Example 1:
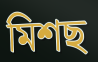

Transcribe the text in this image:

মিশছ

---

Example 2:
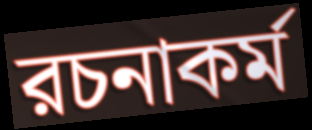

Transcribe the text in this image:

রচনাকর্ম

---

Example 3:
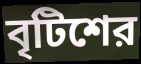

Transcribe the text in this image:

বৃটিশের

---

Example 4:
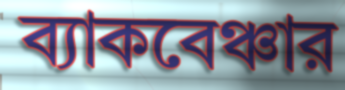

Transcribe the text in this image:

ব্যাকবেঞ্চার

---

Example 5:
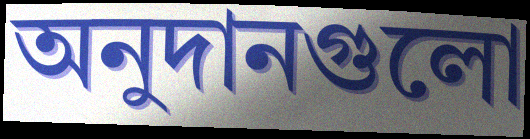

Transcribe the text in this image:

অনুদানগুলো